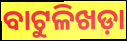
ବାଟୁଳିଖଡ଼ା